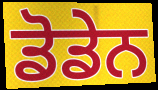
ਡੋਡੇਨ